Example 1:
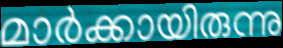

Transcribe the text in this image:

മാർക്കായിരുന്നു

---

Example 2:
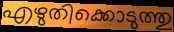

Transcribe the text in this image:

എഴുതിക്കൊടുത്തു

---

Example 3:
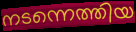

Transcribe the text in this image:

നടന്നെത്തിയ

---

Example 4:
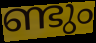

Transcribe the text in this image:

ണ്ടും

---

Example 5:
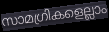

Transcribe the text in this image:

സാമഗ്രികളെല്ലാം